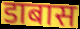
डाबास